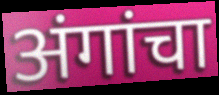
अंगांचा